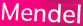
Mendel